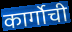
कार्गोची